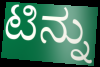
ಟಿನ್ನು